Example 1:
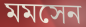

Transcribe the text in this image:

মমসেন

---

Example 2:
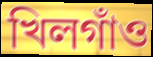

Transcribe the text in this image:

খিলগাঁও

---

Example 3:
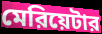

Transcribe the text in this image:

মেরিয়েটার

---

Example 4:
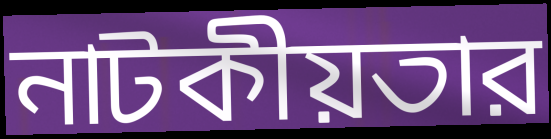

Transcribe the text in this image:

নাটকীয়তার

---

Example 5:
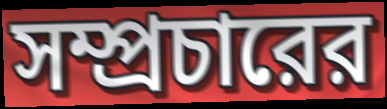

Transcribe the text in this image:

সম্প্রচারের